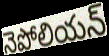
నెపోలియన్